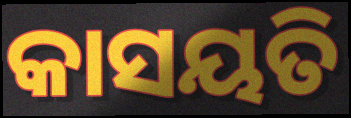
କାସୟତି